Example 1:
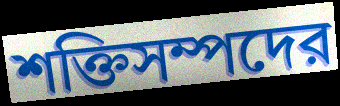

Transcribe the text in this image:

শক্তিসম্পদের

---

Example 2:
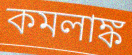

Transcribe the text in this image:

কমলাঙ্ক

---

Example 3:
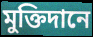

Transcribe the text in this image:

মুক্তিদানে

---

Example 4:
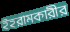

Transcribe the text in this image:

ইহরামকারীর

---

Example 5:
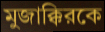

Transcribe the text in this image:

মুজাক্কিরকে